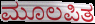
ಮೂಲಪಿತ